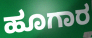
ಹೂಗಾರ